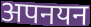
अपनयन